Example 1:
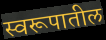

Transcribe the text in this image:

स्वरूपातील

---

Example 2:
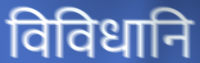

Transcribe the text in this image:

विविधानि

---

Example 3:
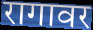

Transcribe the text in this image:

रागावर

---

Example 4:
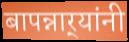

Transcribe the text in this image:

बापन्नार्यांनी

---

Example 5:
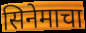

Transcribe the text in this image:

सिनेमाचा